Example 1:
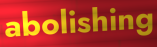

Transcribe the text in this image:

abolishing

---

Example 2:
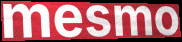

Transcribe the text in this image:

mesmo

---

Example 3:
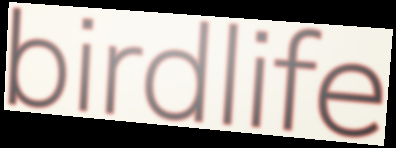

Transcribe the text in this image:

birdlife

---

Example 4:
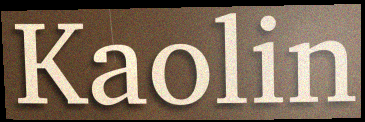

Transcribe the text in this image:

Kaolin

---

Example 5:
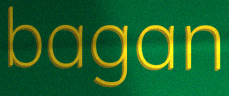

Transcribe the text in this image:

bagan